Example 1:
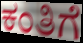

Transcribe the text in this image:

ಕಂತಿಗೆ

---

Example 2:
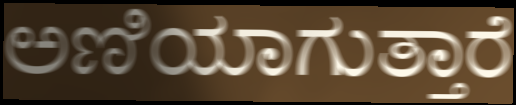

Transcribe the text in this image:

ಅಣಿಯಾಗುತ್ತಾರೆ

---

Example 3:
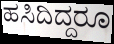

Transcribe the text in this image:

ಹಸಿದಿದ್ದರೂ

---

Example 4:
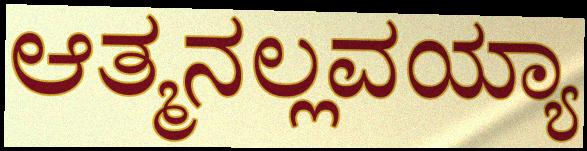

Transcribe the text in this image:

ಆತ್ಮನಲ್ಲವಯ್ಯಾ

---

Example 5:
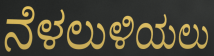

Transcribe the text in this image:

ನೆಳಲುಳಿಯಲು